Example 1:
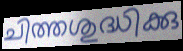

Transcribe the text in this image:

ചിത്തശുദ്ധിക്കു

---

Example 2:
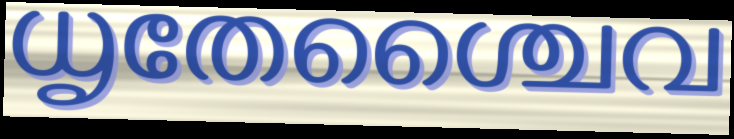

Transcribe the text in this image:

ധൃതേശ്ചൈവ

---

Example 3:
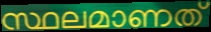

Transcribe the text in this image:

സ്ഥലമാണത്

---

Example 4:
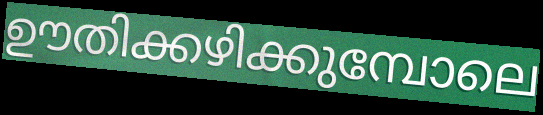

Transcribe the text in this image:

ഊതിക്കഴിക്കുമ്പോലെ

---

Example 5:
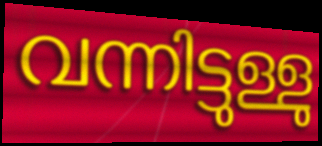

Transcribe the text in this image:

വന്നിട്ടുള്ളു